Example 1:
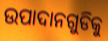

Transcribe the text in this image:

ଉପାଦାନଗୁଡିକୁ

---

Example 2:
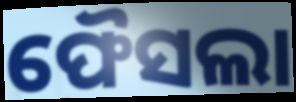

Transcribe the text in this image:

ଫୈସଲା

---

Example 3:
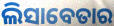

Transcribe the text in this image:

ଲିସାବେତାର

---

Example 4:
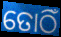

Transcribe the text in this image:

ତୋଠିଁ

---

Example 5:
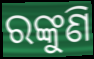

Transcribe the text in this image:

ରଙ୍କୁଣି